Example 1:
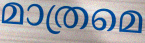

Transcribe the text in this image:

മാത്രമെ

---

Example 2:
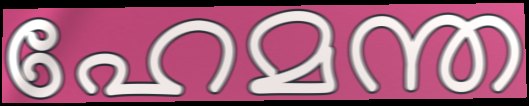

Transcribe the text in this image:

ഹേമന്ത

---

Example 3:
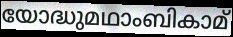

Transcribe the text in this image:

യോദ്ധുമഥാംബികാമ്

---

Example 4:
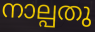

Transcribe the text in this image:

നാല്പതു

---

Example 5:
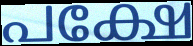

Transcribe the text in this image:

പക്ഷേ